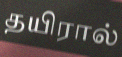
தயிரால்